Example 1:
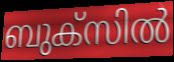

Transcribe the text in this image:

ബുക്സിൽ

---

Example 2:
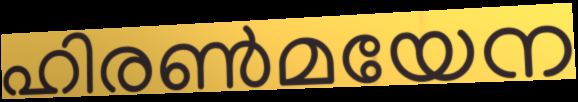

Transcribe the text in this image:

ഹിരൺമയേന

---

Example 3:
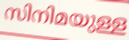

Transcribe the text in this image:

സിനിമയുള്ള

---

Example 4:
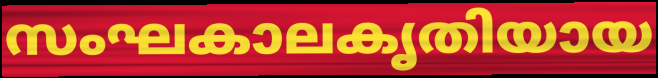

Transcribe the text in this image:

സംഘകാലകൃതിയായ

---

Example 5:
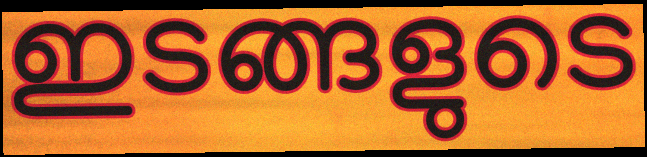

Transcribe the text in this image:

ഇടങ്ങളുടെ